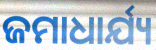
ଜମାଧାର୍ଯ୍ୟ